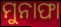
ମୁନାଫା